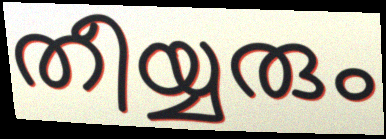
തീയ്യരും